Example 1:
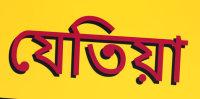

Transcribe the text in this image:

যেতিয়া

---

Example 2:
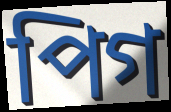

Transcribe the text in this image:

পিগ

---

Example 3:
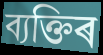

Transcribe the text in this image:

ব্যক্তিৰ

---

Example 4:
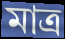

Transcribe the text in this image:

মাত্ৰ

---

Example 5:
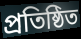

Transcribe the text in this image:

প্ৰতিষ্ঠিত